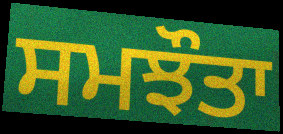
ਸਮਝੌਤਾ